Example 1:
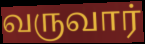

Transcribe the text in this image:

வருவார்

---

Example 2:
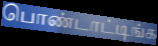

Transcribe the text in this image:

பொண்டாட்டிங்க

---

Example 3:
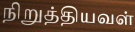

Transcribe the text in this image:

நிறுத்தியவள்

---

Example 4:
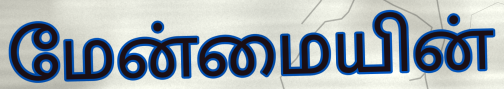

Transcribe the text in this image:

மேன்மையின்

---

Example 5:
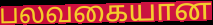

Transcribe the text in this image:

பலவகையான